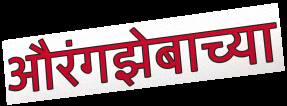
औरंगझेबाच्या